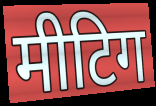
मीटिग